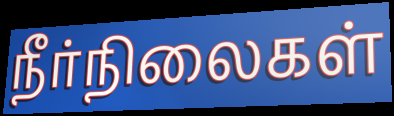
நீர்நிலைகள்